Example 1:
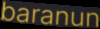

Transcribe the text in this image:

baranun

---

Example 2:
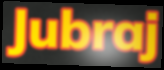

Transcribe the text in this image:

Jubraj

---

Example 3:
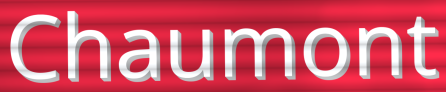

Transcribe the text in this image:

Chaumont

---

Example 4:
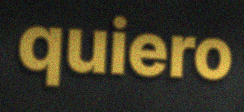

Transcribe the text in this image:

quiero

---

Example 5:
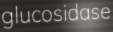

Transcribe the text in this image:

glucosidase